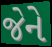
જેને